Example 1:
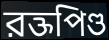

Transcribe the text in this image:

রক্তপিণ্ড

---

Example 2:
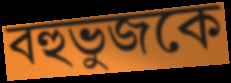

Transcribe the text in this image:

বহুভুজকে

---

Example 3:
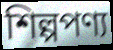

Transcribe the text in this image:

শিল্পপণ্য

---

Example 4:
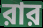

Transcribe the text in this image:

রার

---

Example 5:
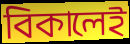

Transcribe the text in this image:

বিকালেই